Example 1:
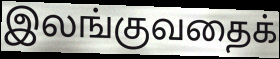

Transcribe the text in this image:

இலங்குவதைக்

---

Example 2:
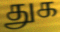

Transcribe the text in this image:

துக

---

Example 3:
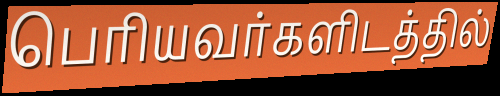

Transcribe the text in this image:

பெரியவர்களிடத்தில்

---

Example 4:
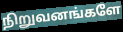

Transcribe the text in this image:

நிறுவனங்களே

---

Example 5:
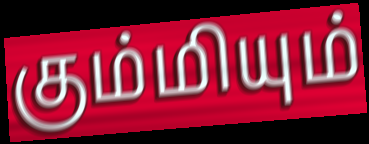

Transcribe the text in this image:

கும்மியும்